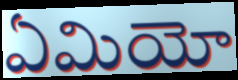
ఏమియో